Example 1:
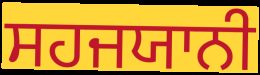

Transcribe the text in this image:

ਸਹਜਯਾਨੀ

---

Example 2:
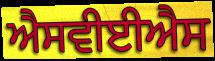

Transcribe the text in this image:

ਐਸਵੀਈਐਸ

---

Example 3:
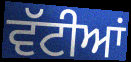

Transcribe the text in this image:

ਵੱਟੀਆਂ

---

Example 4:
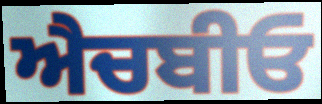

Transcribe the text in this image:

ਐਚਬੀਓ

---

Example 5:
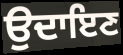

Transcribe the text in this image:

ਉਦਾਇਣ